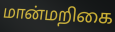
மான்மறிகை